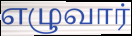
எழுவார்